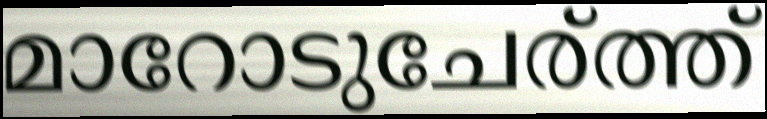
മാറോടുചേര്ത്ത്